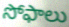
సోఫాలు